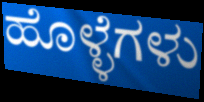
ಹೊಳ್ಳೆಗಳು